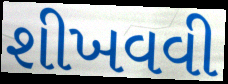
શીખવવી